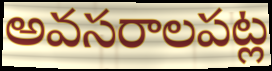
అవసరాలపట్ల